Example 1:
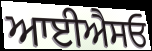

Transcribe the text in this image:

ਆਈਐਸਓ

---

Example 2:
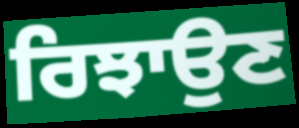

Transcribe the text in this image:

ਰਿਝਾਉਣ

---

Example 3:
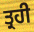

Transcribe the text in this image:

ਤ੍ਰਹੀ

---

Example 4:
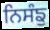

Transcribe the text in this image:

ਨਿਸੰਙੁ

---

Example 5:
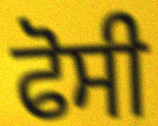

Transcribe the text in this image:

ਫੋਸੀ